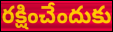
రక్షించేందుకు